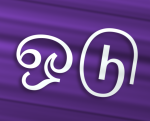
ஒடு